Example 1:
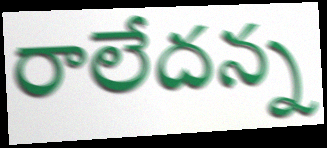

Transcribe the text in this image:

రాలేదన్న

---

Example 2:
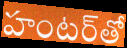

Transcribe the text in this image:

హంటర్‌తో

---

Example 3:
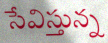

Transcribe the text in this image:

సేవిస్తున్న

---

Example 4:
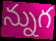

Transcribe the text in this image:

న్నుగ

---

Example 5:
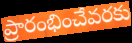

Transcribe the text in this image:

ప్రారంభించేవరకు